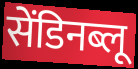
सेंडिनब्लू